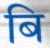
बि